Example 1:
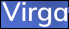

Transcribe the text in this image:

Virga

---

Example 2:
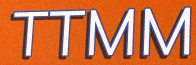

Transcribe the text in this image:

TTMM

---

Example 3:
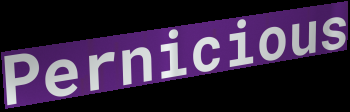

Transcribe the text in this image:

Pernicious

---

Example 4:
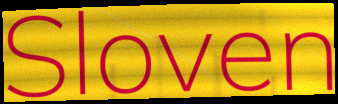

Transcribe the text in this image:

Sloven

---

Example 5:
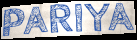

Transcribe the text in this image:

PARIYA